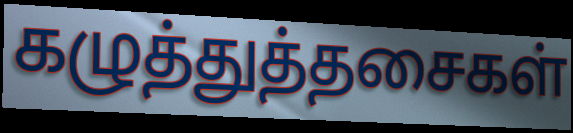
கழுத்துத்தசைகள்